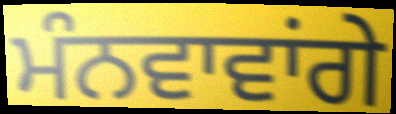
ਮੰਨਵਾਵਾਂਗੇ